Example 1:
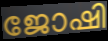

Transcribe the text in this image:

ജോഷി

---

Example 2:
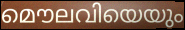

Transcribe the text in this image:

മൌലവിയെയും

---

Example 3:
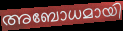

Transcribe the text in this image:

അബോധമായി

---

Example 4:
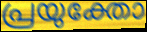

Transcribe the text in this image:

പ്രയുക്തോ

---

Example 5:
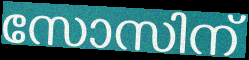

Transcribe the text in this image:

സോസിന്